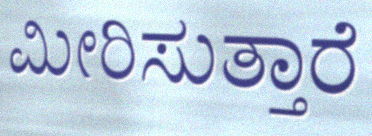
ಮೀರಿಸುತ್ತಾರೆ